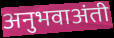
अनुभवाअंती